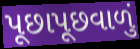
પૂછાપૂછવાળું